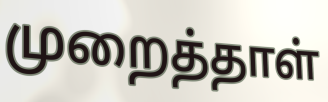
முறைத்தாள்